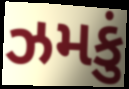
ઝમકું